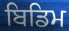
ਬਿਡਿਮ